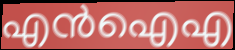
എൻഐഎ